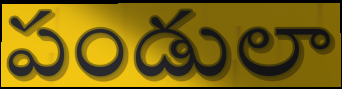
పండులా